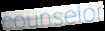
counselor